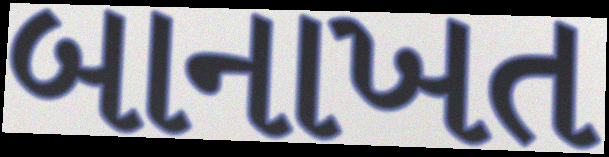
બાનાખત